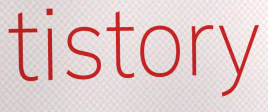
tistory